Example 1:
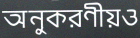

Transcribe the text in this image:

অনুকরণীয়ও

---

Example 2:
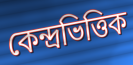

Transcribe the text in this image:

কেন্দ্রভিত্তিক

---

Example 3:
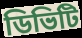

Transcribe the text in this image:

ডিভিটি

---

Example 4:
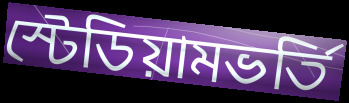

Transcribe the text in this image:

স্টেডিয়ামভর্তি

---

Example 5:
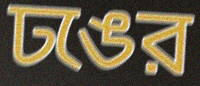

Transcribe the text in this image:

ঢঙের